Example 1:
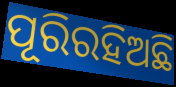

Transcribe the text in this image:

ପୂରିରହିଅଛି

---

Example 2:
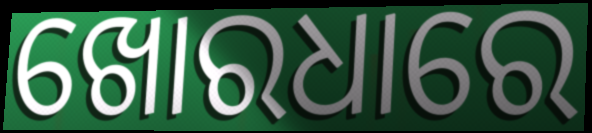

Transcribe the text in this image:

ଖୋରଧାରେ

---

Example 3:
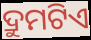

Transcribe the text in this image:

ଦ୍ରୁମଟିଏ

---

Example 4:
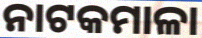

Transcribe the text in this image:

ନାଟକମାଳା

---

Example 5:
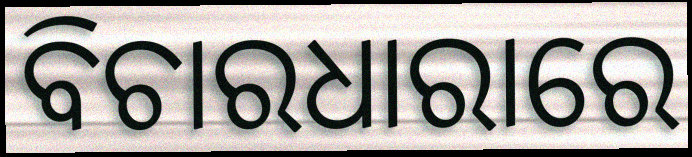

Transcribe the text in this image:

ବିଚାରଧାରାରେ